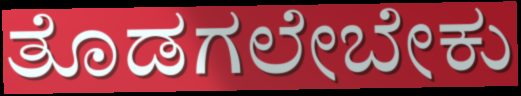
ತೊಡಗಲೇಬೇಕು